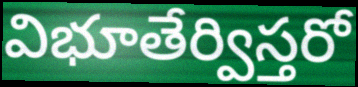
విభూతేర్విస్తరో